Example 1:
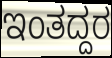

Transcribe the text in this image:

ಇಂತದ್ದರ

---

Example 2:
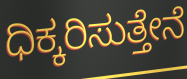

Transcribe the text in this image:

ಧಿಕ್ಕರಿಸುತ್ತೇನೆ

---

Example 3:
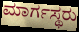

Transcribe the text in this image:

ಮಾರ್ಗಸ್ಥರು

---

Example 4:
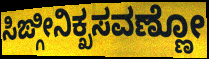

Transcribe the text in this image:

ಸಿಙ್ಗೀನಿಕ್ಖಸವಣ್ಣೋ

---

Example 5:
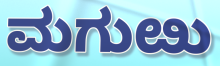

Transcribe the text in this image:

ಮಗುೞು